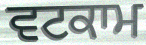
ਵਟਕਾਮ